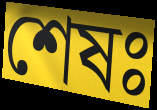
শেষঃ